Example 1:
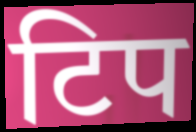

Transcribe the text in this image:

टिप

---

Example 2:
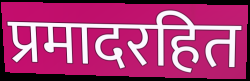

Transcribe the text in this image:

प्रमादरहित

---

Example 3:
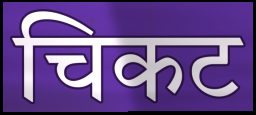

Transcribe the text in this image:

चिकट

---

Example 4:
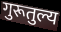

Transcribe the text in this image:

गुरूतुल्य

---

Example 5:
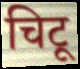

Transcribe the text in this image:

चिटू